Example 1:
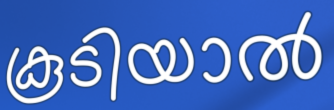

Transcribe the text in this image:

കൂടിയാൽ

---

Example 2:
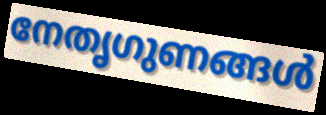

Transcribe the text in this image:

നേതൃഗുണങ്ങൾ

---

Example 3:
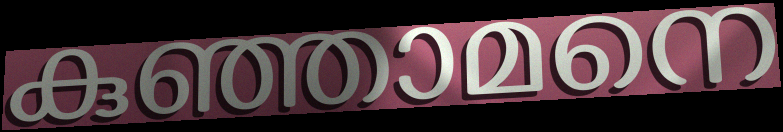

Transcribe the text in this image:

കുഞ്ഞാമനെ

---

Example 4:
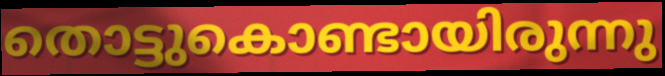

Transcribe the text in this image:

തൊട്ടുകൊണ്ടായിരുന്നു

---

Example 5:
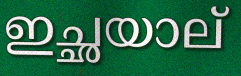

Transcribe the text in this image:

ഇച്ഛയാല്